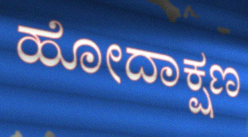
ಹೋದಾಕ್ಷಣ